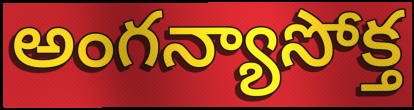
అంగన్యాసోక్త